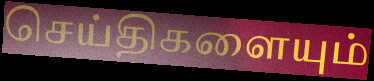
செய்திகளையும்